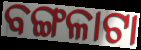
ବଙ୍ଗଳାଟା